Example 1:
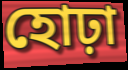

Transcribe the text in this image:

হোঢ়া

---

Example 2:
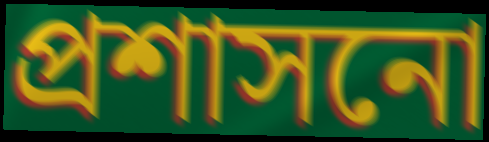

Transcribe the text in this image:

প্ৰশাসনো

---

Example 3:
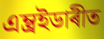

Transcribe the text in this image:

এম্ব্ৰইডাৰীত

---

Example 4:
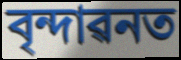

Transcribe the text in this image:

বৃন্দাৱনত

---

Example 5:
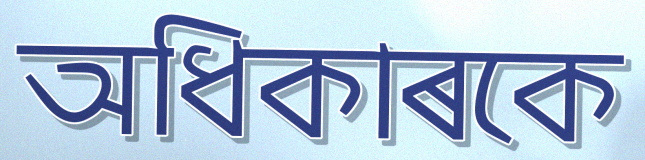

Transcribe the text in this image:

অধিকাৰকে